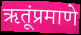
ऋतूंप्रमाणे